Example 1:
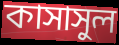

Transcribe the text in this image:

কাসাসুল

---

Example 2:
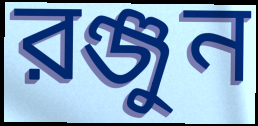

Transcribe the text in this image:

রঞ্জুন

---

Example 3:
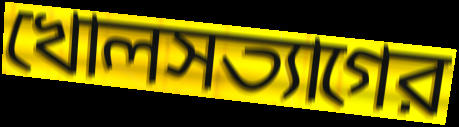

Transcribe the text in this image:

খোলসত্যাগের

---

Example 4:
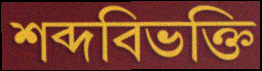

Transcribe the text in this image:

শব্দবিভক্তি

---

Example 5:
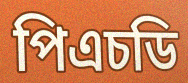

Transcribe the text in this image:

পিএচডি